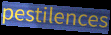
pestilences